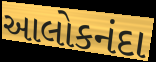
આલોકનંદા